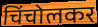
चिंचोलकर